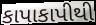
કાપાકાપીથી